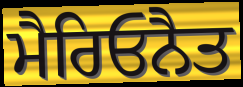
ਮੈਰਿਓਨੈਤ